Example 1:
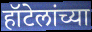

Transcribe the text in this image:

हॉटेलांच्या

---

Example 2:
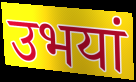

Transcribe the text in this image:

उभयां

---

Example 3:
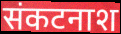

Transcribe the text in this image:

संकटनाश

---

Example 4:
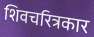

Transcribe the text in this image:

शिवचरित्रकार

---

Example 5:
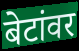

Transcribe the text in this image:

बेटांवर